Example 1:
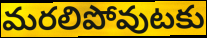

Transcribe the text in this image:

మరలిపోవుటకు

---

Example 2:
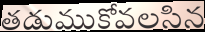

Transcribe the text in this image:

తడుముకోవలసిన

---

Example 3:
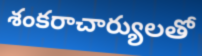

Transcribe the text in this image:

శంకరాచార్యులతో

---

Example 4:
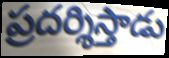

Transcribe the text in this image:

ప్రదర్శిస్తాడు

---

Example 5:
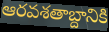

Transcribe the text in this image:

ఆరవశతాబ్దానికి